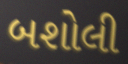
બશોલી